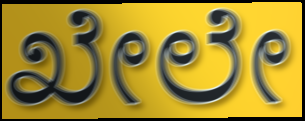
ಖೇಲೇ